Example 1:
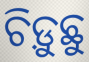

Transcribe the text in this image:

ଚିଡ଼ୁଛୁ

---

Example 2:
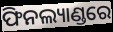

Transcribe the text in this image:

ଫିନଲ୍ୟାଣ୍ଡରେ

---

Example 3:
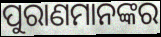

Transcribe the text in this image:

ପୁରାଣମାନଙ୍କର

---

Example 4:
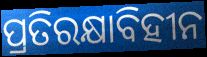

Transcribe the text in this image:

ପ୍ରତିରକ୍ଷାବିହୀନ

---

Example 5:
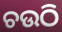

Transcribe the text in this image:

ଚଉଠି